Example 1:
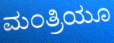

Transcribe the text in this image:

ಮಂತ್ರಿಯೂ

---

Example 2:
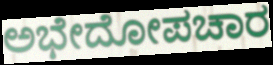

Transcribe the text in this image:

ಅಭೇದೋಪಚಾರ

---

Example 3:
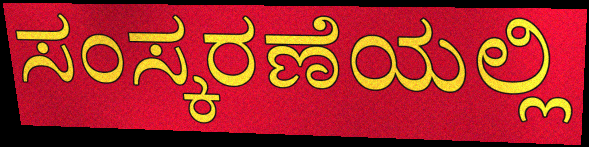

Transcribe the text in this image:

ಸಂಸ್ಕರಣೆಯಲ್ಲಿ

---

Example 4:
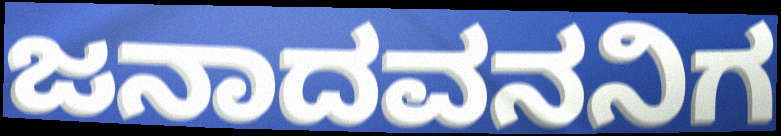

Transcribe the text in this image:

ಜನಾದವನನಿಗ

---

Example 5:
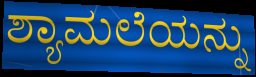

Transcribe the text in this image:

ಶ್ಯಾಮಲೆಯನ್ನು